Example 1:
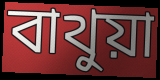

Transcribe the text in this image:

বাথুয়া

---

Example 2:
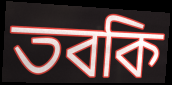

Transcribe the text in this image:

তবকি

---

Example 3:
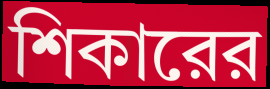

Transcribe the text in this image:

শিকারের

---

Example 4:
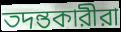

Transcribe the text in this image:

তদন্তকারীরা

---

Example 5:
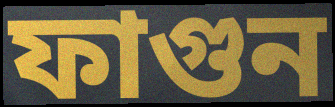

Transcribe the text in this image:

ফাগুন